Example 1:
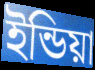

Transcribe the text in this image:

ইন্ডিয়া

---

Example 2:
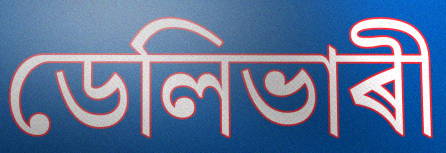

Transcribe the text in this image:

ডেলিভাৰী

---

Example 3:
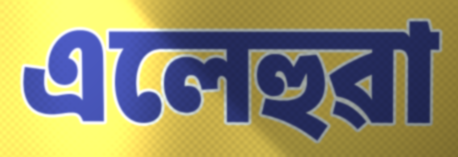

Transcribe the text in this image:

এলেহুৱা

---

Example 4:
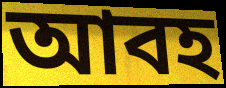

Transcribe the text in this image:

আবহ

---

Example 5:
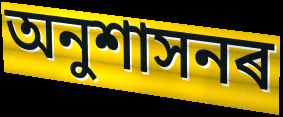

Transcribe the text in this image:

অনুশাসনৰ